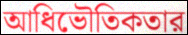
আধিভৌতিকতার